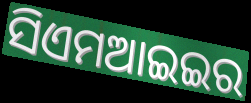
ସିଏମଆଇଇର